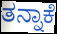
ತನ್ನಾಕೆ